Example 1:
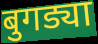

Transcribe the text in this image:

बुगड्या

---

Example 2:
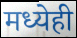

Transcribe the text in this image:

मध्येही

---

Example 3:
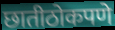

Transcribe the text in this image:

छातीठोकपणे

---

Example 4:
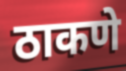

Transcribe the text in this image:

ठाकणे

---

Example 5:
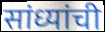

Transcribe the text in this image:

सांध्यांची